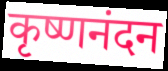
कृष्णनंदन